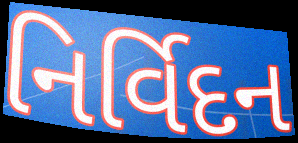
નિર્વિદન